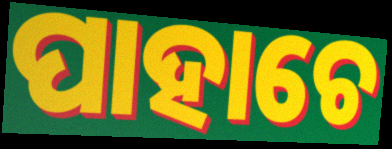
ପାହାଚେ